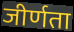
जीर्णता